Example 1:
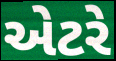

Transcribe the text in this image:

એટરે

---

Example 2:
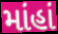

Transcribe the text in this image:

માંહાં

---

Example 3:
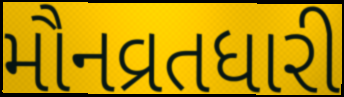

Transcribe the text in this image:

મૌનવ્રતધારી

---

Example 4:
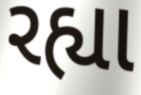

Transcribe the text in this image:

રહ્યા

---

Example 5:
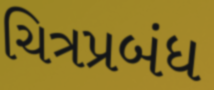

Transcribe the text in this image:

ચિત્રપ્રબંધ